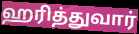
ஹரித்துவார்